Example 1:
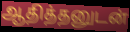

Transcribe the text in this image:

ஆதித்தனுடன்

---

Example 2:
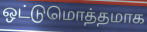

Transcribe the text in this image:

ஒட்டுமொத்தமாக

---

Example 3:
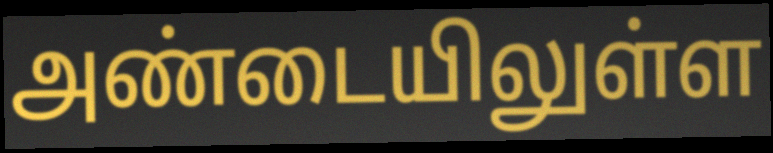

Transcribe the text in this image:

அண்டையிலுள்ள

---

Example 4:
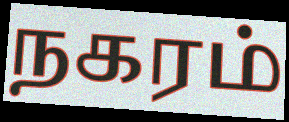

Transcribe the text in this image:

நகரம்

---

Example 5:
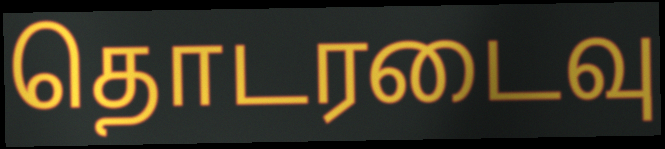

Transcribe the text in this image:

தொடரடைவு